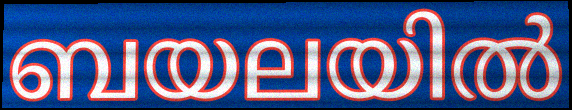
ബയലയിൽ